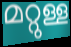
മറ്റുള്ള